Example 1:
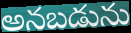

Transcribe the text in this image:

అనబడును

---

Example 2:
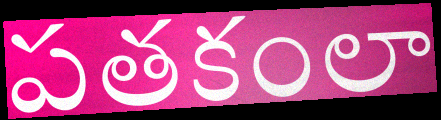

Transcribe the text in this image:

పతకంలా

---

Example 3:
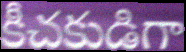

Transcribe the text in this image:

కీచకుడిగా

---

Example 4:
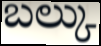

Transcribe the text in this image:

బల్కు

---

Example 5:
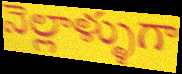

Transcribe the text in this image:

నెల్లాళ్ళుగా